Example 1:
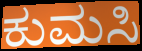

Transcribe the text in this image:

ಕುಮಸಿ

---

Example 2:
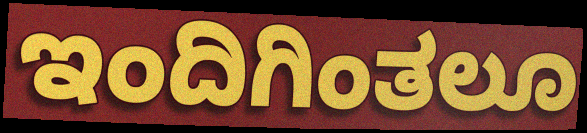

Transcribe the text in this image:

ಇಂದಿಗಿಂತಲೂ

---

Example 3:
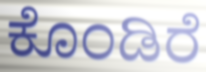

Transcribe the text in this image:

ಕೊಂಡಿರೆ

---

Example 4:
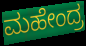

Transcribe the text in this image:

ಮಹೇಂದ್ರ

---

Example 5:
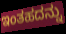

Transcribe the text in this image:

ಇಂತಹದನ್ನು